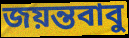
জয়ন্তবাবু